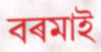
বৰমাই